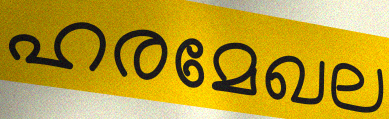
ഹരമേഖല